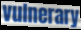
vulnerary